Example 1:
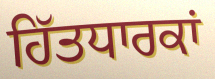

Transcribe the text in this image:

ਹਿੱਤਧਾਰਕਾਂ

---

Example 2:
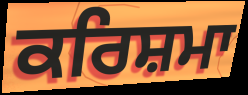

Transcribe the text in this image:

ਕਰਿਸ਼ਮਾ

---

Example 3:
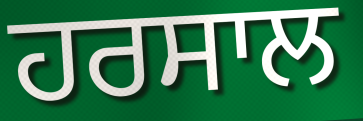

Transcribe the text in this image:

ਹਰਸਾਲ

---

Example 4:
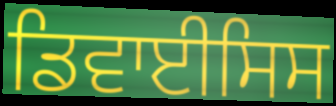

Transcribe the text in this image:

ਡਿਵਾਈਸਿਸ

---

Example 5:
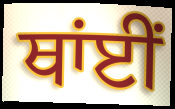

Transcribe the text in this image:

ਥਾਂਈਂ